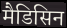
मैडिसिन